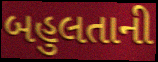
બહુલતાની